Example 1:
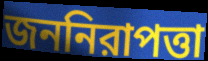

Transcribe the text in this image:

জননিরাপত্তা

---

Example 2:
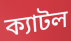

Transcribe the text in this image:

ক্যাটল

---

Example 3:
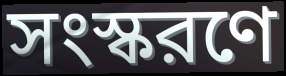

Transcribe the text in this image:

সংস্করণে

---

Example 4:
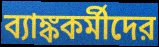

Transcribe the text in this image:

ব্যাঙ্ককর্মীদের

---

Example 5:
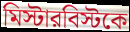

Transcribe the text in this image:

মিস্টারবিস্টকে